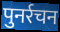
पुनर्रचन